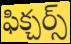
ఫిక్చర్స్